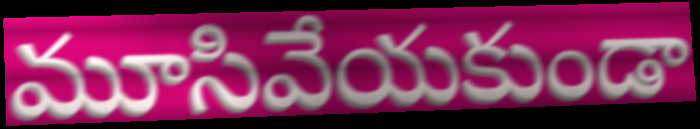
మూసివేయకుండా